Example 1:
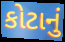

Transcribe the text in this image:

કોટાનું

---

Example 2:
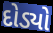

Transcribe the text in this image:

દોડ્યો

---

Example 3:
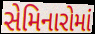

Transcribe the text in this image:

સેમિનારોમાં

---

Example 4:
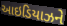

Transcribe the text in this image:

આઇડિયાઝને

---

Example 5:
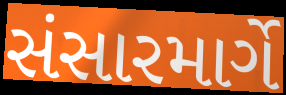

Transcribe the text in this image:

સંસારમાર્ગે